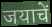
जयाचें